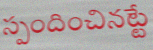
స్పందించినట్టే